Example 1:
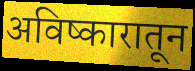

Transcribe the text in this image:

अविष्कारातून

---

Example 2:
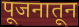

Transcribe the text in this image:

पूजनातून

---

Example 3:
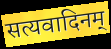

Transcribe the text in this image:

सत्यवादिनम्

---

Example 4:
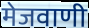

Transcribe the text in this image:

मेजवाणी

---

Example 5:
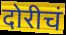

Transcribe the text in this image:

दोरीचं